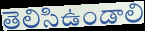
తెలిసిఉండాలి